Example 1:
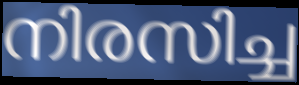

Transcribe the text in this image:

നിരസിച്ച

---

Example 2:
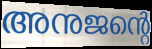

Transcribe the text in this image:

അനുജന്റെ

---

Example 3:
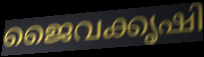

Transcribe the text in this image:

ജൈവക്കൃഷി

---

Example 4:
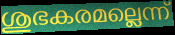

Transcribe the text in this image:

ശുഭകരമല്ലെന്ന്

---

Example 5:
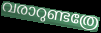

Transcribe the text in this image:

വരാറുണ്ടത്രേ